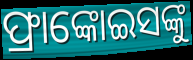
ଫ୍ରାଙ୍କୋଇସଙ୍କୁ